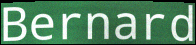
Bernard